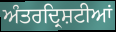
ਅੰਤਰਦ੍ਰਿਸ਼ਟੀਆਂ